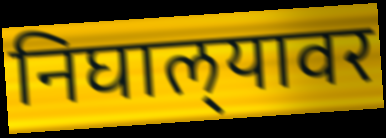
निघाल्यावर